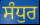
ਸੰਧੁਰ